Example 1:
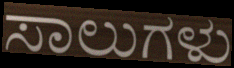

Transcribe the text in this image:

ಸಾಲುಗಳು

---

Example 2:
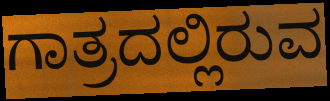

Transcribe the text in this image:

ಗಾತ್ರದಲ್ಲಿರುವ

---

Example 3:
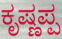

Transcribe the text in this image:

ಕೃಷ್ಣಪ್ಪ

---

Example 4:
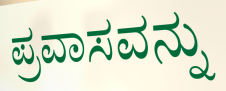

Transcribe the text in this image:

ಪ್ರವಾಸವನ್ನು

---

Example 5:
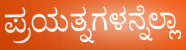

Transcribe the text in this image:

ಪ್ರಯತ್ನಗಳನ್ನೆಲ್ಲಾ